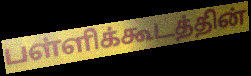
பள்ளிக்கூடத்தின்